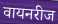
वायनरीज